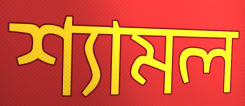
শ্যামল